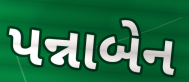
પન્નાબેન